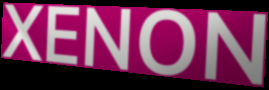
XENON